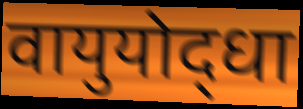
वायुयोद्धा